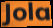
Jola